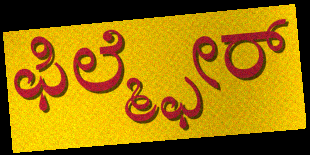
ಫಿಲ್ಮ್ಫೇರ್